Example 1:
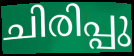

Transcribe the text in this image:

ചിരിപ്പു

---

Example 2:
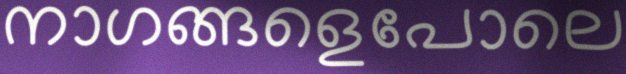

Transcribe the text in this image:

നാഗങ്ങളെപോലെ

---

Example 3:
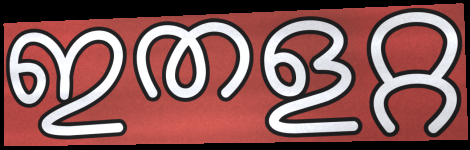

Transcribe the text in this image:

ഇതളറ്റ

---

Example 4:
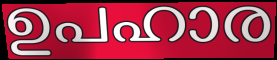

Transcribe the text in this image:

ഉപഹാര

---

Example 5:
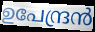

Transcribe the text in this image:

ഉപേന്ദ്രൻ